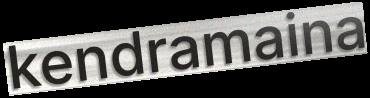
kendramaina